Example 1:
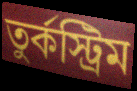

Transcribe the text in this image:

তুর্কস্ট্রিম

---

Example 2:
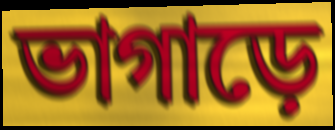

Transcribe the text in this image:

ভাগাড়ে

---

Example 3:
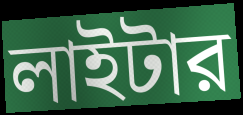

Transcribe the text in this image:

লাইটার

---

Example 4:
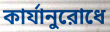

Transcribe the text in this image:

কার্যানুরোধে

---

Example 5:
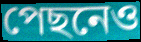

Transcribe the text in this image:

পেছনেও